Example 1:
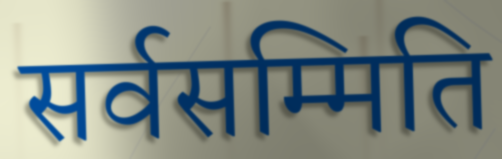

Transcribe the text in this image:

सर्वसम्मिति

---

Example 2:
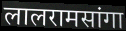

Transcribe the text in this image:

लालरामसांगा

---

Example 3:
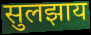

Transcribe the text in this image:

सुलझाय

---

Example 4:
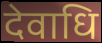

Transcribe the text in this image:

देवाधि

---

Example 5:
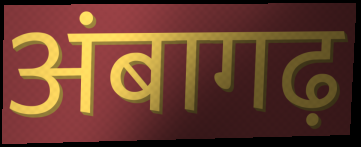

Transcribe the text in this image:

अंबागढ़